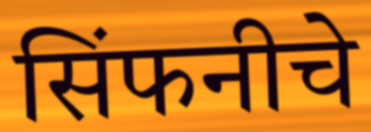
सिंफनीचे